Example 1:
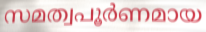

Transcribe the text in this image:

സമത്വപൂർണമായ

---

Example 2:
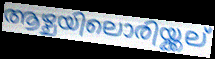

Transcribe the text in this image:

ആഴ്ചയിലൊരിയ്ക്കല്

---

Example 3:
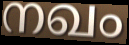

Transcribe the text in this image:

നഖം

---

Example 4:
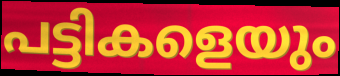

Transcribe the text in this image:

പട്ടികളെയും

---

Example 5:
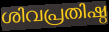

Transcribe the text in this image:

ശിവപ്രതിഷ്ഠ